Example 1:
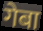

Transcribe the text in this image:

गेबा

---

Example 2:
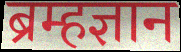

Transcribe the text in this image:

ब्रम्हज्ञान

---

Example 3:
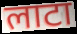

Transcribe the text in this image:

लाटा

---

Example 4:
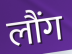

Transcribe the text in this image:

लौंग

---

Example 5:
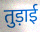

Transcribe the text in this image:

तुड़ाई